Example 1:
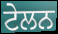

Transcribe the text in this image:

ਟੇਲਨ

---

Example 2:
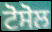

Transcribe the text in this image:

ਟੋਸੋਲ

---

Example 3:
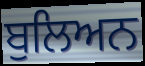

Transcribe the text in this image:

ਬੁਲਿਅਨ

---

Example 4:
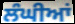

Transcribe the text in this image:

ਲੰਘੀਆਂ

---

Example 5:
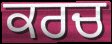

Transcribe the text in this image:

ਕਰਚ